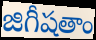
జిగీషతాం